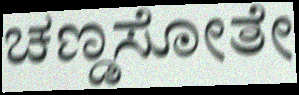
ಚಣ್ಡಸೋತೇ